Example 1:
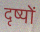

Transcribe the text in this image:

दृष्यों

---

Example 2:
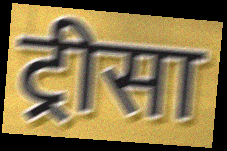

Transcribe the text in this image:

ट्रीसा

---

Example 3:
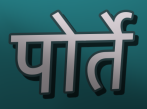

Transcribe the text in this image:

पोर्ते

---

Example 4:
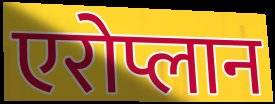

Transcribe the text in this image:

एरोप्लान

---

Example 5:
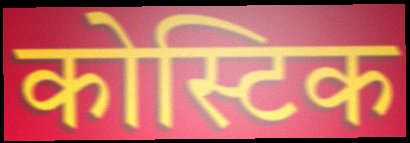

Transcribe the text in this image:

कोस्टिक